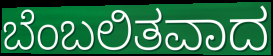
ಬೆಂಬಲಿತವಾದ